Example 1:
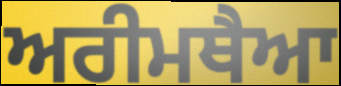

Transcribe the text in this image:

ਅਰੀਮਥੈਆ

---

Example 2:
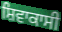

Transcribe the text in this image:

ਸ਼ਿਵਾਕਾਸੀ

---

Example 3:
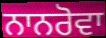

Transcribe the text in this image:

ਨਾਨਰੋਵਾ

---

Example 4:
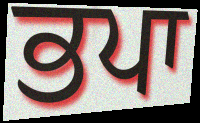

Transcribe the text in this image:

ਭਪਾ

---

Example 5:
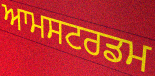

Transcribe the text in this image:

ਆਮਸਟਰਡਮ